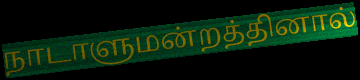
நாடாளுமன்றத்தினால்